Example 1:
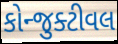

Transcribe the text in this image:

કોન્જુક્ટીવલ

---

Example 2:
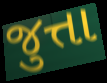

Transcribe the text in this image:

જુત્તા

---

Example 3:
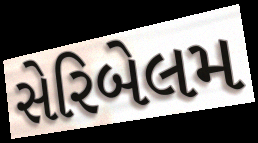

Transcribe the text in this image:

સેરિબેલમ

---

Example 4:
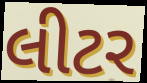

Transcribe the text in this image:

લીટર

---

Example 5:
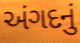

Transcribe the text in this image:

અંગદનું